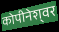
कोपीनेश्वर